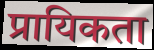
प्रायिकता